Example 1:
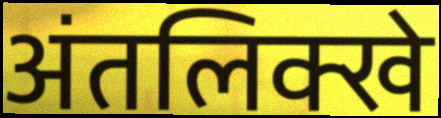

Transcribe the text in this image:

अंतलिक्खे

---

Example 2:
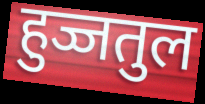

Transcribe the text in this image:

हुज्जतुल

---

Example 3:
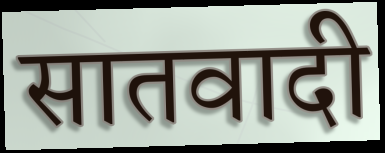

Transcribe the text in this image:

सातवादी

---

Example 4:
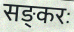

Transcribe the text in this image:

सङ्करः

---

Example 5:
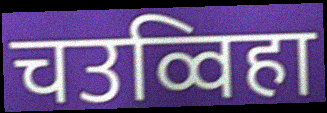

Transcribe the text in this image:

चउव्विहा